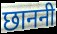
छाननी